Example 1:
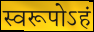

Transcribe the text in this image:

स्वरूपोऽहं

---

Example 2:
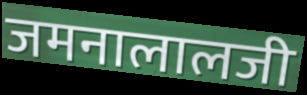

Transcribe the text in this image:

जमनालालजी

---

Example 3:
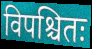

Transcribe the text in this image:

विपश्चितः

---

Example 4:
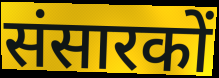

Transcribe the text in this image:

संसारकों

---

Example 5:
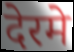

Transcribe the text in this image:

देरमे